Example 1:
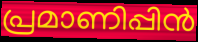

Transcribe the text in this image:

പ്രമാണിപ്പിൻ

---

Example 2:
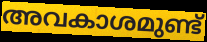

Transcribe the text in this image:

അവകാശമുണ്ട്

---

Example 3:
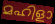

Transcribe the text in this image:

മഹിളാ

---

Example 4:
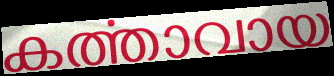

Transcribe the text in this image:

കൎത്താവായ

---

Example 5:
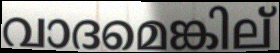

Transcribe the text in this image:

വാദമെങ്കില്